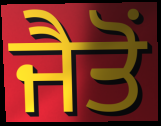
ਜੈਤੋਂ